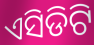
ଏସିଡିଟି